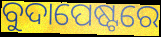
ବୁଦାପେଷ୍ଟରେ